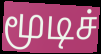
மூடிச்